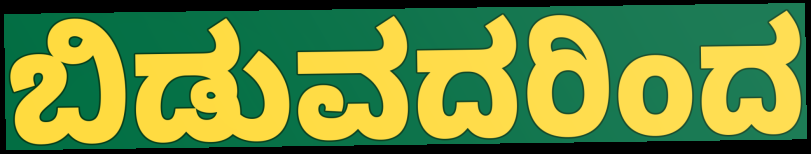
ಬಿಡುವದರಿಂದ